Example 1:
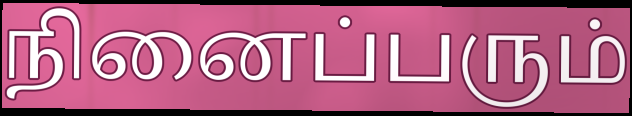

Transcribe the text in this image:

நினைப்பரும்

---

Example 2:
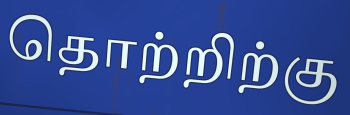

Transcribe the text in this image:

தொற்றிற்கு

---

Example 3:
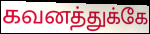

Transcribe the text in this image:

கவனத்துக்கே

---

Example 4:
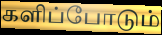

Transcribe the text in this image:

களிப்போடும்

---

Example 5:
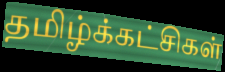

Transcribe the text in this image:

தமிழ்க்கட்சிகள்